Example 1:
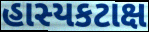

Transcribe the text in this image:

હાસ્યકટાક્ષ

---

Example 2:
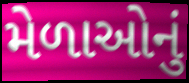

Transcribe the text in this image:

મેળાઓનું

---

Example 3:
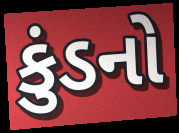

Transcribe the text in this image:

કુંડનો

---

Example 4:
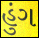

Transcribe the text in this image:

હુંગ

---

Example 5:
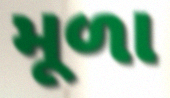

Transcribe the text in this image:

મૂળા